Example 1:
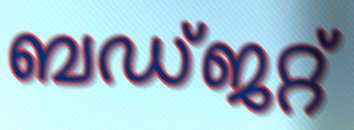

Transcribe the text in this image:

ബഡ്ജറ്റ്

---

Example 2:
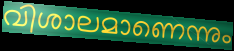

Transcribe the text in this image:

വിശാലമാണെന്നും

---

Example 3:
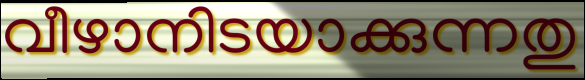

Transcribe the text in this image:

വീഴാനിടയാക്കുന്നതു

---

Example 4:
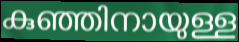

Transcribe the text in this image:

കുഞ്ഞിനായുള്ള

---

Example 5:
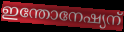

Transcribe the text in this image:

ഇന്തോനേഷ്യന്